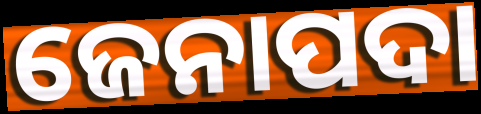
ଜେନାପଦା